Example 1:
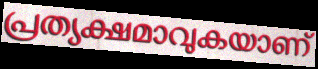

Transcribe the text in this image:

പ്രത്യക്ഷമാവുകയാണ്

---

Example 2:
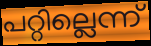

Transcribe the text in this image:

പറ്റില്ലെന്ന്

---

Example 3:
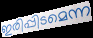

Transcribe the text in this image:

ഇരിപ്പിടമെന്ന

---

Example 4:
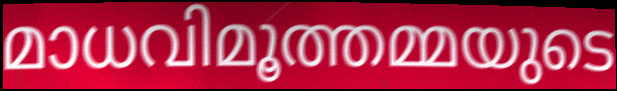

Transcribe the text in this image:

മാധവിമൂത്തമ്മയുടെ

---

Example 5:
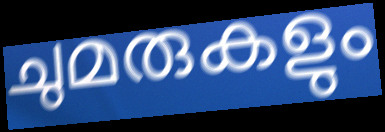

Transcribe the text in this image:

ചുമരുകളും